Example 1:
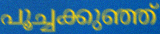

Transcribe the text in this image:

പൂച്ചക്കുഞ്ഞ്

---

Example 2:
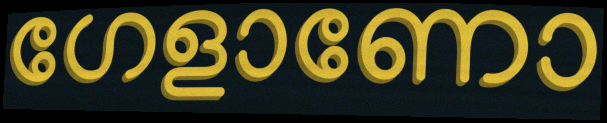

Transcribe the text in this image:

ഗേളാണോ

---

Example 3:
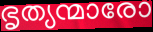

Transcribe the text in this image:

ഭൃത്യന്മാരോ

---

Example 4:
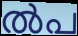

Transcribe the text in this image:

ൽപ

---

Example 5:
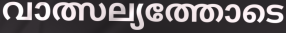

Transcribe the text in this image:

വാത്സല്യത്തോടെ